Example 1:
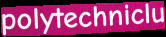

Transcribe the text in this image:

polytechniclu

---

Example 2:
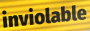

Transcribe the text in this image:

inviolable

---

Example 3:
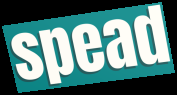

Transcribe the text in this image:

spead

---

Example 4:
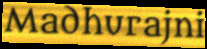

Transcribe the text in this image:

Madhurajni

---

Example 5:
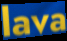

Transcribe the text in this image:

lava